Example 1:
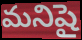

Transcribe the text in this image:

మనిషై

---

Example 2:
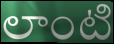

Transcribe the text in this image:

లాంటి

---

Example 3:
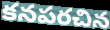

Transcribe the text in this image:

కనపరచిన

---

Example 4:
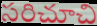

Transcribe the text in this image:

సరిచూచి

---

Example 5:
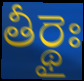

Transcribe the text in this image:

తీర్థైః